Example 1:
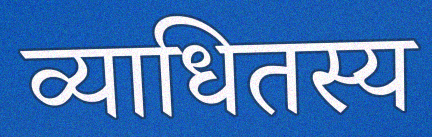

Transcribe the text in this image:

व्याधितस्य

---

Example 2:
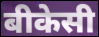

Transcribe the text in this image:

बीकेसी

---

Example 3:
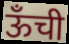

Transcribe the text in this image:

ऊँची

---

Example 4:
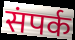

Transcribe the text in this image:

संपर्क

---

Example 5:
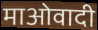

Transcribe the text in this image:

माओवादी